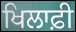
ਖਿਲਾਫ਼ੀ